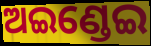
ଅଇଣ୍ଡେଇ